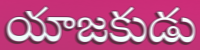
యాజకుడు